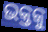
ଭକ୍ତକୁ